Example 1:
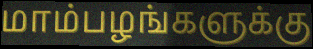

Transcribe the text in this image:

மாம்பழங்களுக்கு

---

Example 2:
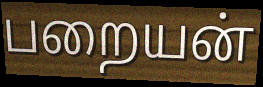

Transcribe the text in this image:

பறையன்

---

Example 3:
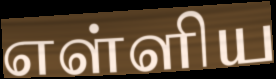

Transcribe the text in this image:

எள்ளிய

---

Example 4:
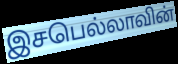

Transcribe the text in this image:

இசபெல்லாவின்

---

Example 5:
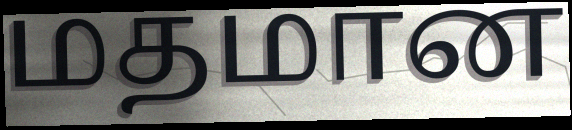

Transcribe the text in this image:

மதமான